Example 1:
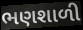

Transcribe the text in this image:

ભણશાળી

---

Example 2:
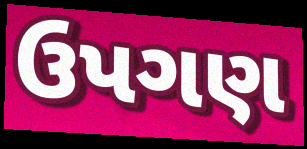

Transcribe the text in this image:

ઉપગણ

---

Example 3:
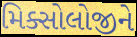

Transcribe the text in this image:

મિક્સોલોજીને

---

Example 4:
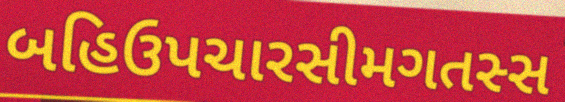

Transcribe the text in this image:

બહિઉપચારસીમગતસ્સ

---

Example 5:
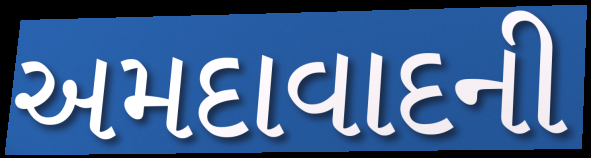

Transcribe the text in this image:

અમદાવાદની